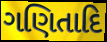
ગણિતાદિ